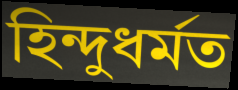
হিন্দুধৰ্মত